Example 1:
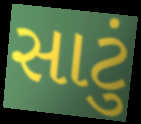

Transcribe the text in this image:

સાટું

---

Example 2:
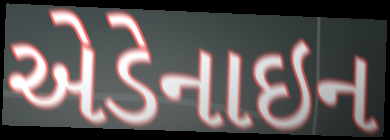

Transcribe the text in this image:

એડેનાઇન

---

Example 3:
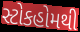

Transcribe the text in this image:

સ્ટોકહોમથી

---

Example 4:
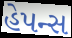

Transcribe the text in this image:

હેપન્સ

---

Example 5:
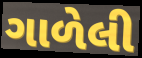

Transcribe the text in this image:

ગાળેલી